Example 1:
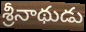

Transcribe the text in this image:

శ్రీనాథుడు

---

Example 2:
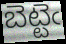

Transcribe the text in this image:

బెట్టెఁ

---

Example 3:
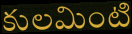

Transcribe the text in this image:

కులమింటి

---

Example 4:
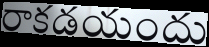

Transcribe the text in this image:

రాకడయందు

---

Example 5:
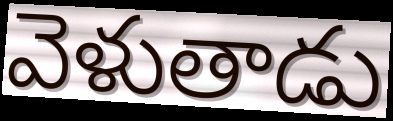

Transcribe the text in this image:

వెళుతాడు